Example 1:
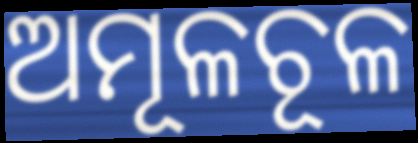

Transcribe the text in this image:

ଅମୂଳଚୂଳ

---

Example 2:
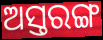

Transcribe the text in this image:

ଅସ୍ତରଙ୍ଗ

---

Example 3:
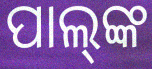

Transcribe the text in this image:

ପାଲ୍‌ଙ୍କ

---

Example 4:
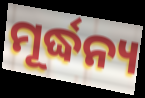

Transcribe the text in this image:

ମୂର୍ଦ୍ଧନ୍ୟ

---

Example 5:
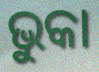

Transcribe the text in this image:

ଭୁକା